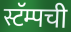
स्टॅम्पची